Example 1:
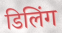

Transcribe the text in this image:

डिलिंग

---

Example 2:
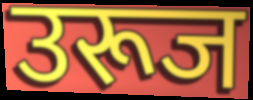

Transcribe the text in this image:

उरूज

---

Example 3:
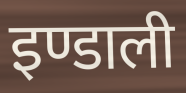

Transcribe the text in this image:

इण्डाली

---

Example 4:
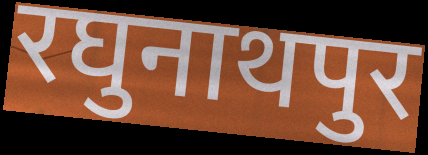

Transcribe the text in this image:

रघुनाथपुर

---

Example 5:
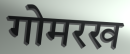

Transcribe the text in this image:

गोमरख